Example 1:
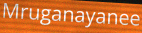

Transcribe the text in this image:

Mruganayanee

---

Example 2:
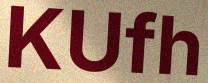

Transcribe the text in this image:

KUfh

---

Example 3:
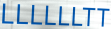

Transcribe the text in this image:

LLLLLLTT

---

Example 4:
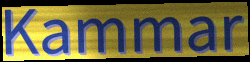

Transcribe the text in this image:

Kammar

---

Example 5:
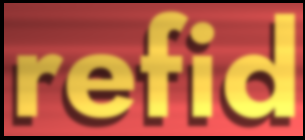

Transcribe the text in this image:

refid